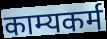
काम्यकर्म